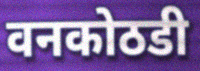
वनकोठडी